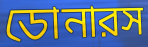
ডোনারস